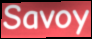
Savoy